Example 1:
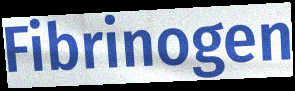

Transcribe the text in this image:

Fibrinogen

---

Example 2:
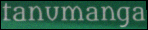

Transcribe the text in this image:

tanumanga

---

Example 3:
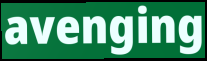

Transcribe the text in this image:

avenging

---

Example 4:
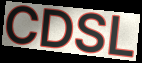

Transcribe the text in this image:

CDSL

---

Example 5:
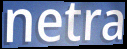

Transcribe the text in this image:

netra